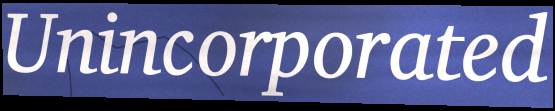
Unincorporated